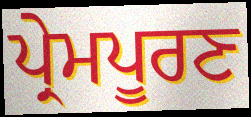
ਪ੍ਰੇਮਪੂਰਣ